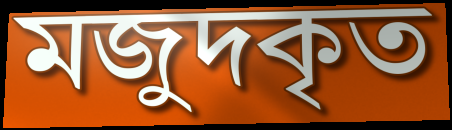
মজুদকৃত